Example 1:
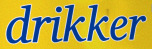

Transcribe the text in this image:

drikker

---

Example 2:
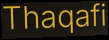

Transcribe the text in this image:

Thaqafi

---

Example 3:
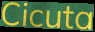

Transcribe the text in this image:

Cicuta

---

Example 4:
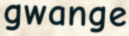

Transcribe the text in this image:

gwange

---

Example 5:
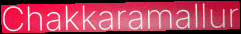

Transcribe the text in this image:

Chakkaramallur